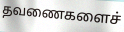
தவணைகளைச்